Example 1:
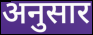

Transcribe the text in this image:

अनुसार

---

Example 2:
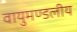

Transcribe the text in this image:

वायुमण्डलीय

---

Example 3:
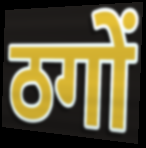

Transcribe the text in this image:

ठगों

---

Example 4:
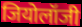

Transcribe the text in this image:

जियोलॉजी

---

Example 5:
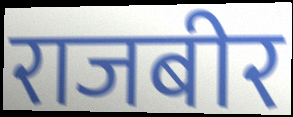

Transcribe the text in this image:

राजबीर